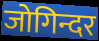
जोगिन्दर